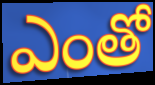
ఎంతో